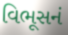
વિભૂસનં